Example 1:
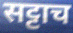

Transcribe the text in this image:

सट्टाच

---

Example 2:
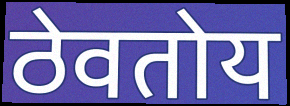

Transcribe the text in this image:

ठेवतोय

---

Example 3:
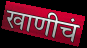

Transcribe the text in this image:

खाणीचं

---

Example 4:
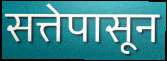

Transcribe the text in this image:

सत्तेपासून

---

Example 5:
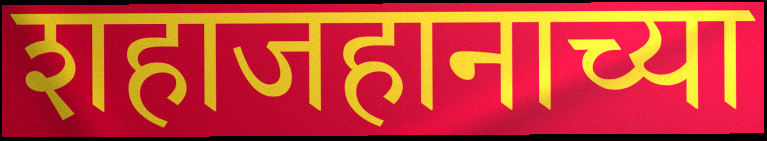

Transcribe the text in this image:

शहाजहानाच्या